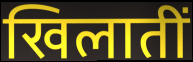
खिलातीं